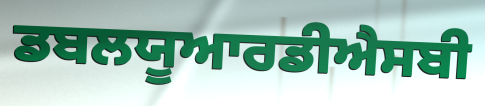
ਡਬਲਯੂਆਰਡੀਐਸਬੀ